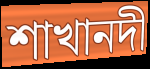
শাখানদী